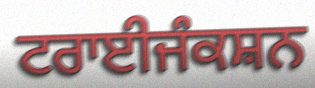
ਟਰਾਈਜੰਕਸ਼ਨ